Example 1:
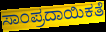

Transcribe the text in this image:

ಸಾಂಪ್ರದಾಯಿಕತೆ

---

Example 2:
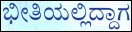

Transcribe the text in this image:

ಭೀತಿಯಲ್ಲಿದ್ದಾಗ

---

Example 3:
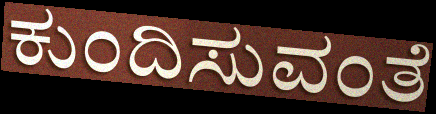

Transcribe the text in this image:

ಕುಂದಿಸುವಂತೆ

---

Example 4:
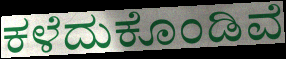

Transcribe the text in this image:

ಕಳೆದುಕೊಂಡಿವೆ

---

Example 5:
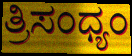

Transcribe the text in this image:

ತ್ರಿಸಂಧ್ಯಂ